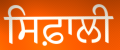
ਸਿਫ਼ਾਲੀ